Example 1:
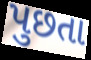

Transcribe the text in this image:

પુછતા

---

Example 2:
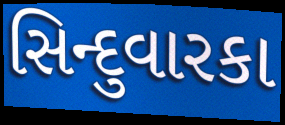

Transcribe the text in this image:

સિન્દુવારકા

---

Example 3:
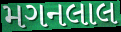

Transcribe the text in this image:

મગનલાલ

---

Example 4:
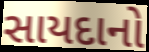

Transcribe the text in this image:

સાયદાનો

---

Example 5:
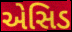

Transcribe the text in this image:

એસિડ